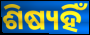
ଶିଷ୍ୟହିଁ